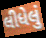
લીધેલું